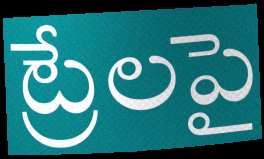
ట్రేలపై